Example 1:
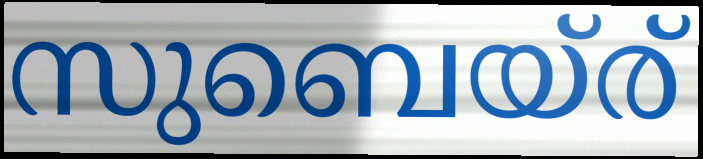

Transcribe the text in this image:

സുബെയ്ര്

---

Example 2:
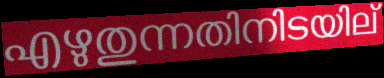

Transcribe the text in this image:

എഴുതുന്നതിനിടയില്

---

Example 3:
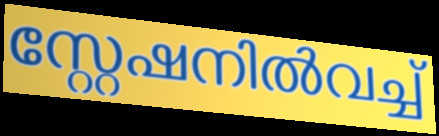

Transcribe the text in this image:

സ്റ്റേഷനിൽവച്ച്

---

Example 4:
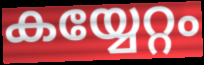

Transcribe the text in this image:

കയ്യേറ്റം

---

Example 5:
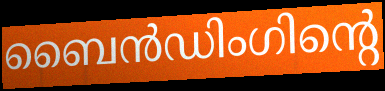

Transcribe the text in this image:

ബൈൻഡിംഗിന്റെ